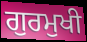
ਗੁਰਮੁਖੀ